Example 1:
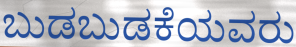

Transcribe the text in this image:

ಬುಡಬುಡಕೆಯವರು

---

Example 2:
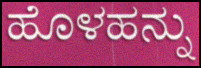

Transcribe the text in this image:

ಹೊಳಹನ್ನು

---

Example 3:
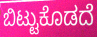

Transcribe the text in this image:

ಬಿಟ್ಟುಕೊಡದೆ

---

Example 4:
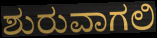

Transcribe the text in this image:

ಶುರುವಾಗಲಿ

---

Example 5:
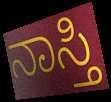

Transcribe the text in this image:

ನಾಸ್ತಿ